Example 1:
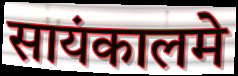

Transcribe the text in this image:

सायंकालमे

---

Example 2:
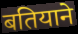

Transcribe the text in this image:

बतियाने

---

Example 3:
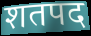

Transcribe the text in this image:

शतपद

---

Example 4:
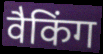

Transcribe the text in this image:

वैकिंग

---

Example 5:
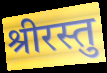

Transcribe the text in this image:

श्रीरस्तु